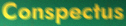
Conspectus